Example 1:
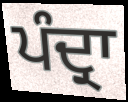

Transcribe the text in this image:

ਪੰਦ੍ਰਾ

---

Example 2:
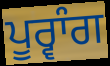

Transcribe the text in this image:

ਪੂਰ੍ਵਾੰਗ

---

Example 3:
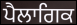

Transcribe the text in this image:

ਪੈਲਾਗਿਕ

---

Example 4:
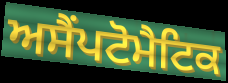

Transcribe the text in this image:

ਅਸੈਂਪਟੋਮੈਟਿਕ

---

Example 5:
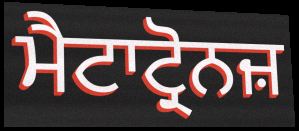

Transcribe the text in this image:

ਮੈਟਾਟ੍ਰੋਨਜ਼